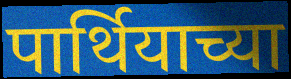
पार्थियाच्या